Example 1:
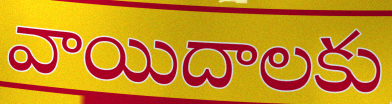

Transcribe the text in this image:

వాయిదాలకు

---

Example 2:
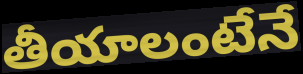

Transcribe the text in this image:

తీయాలంటేనే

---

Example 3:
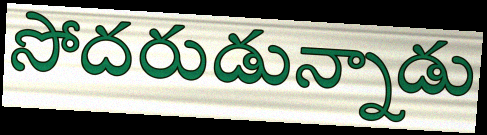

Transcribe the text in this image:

సోదరుడున్నాడు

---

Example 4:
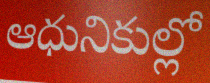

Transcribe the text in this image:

ఆధునికుల్లో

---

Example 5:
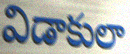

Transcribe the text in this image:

విడాకులా